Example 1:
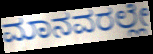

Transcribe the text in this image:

ಮಾನವರಲ್ಲೇ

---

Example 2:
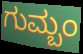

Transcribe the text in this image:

ಗುಮ್ಬಂ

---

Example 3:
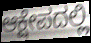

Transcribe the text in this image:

ಆಕ್ಷೇಪದಲ್ಲಿ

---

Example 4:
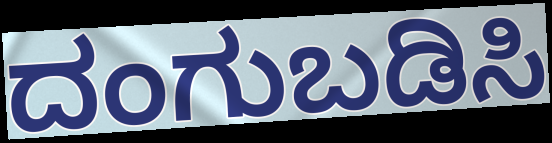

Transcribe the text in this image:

ದಂಗುಬಡಿಸಿ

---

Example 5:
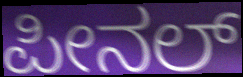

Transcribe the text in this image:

ಪೀನಲ್